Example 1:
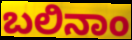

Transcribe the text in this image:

ಬಲಿನಾಂ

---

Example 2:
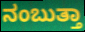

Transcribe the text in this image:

ನಂಬುತ್ತಾ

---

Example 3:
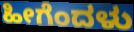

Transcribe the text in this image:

ಹೀಗೆಂದಳು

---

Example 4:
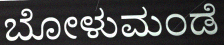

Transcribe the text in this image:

ಬೋಳುಮಂಡೆ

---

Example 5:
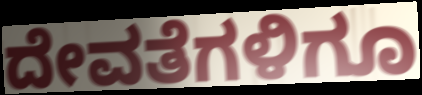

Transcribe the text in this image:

ದೇವತೆಗಳಿಗೂ